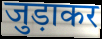
जुड़ाकर